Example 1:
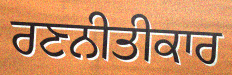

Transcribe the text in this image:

ਰਣਨੀਤੀਕਾਰ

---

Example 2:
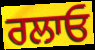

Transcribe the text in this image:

ਰਲਾਓ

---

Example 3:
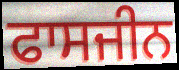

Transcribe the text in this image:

ਫਾਸਜੀਨ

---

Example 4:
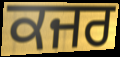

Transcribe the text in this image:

ਕਜਰ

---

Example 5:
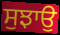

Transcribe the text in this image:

ਸੁਝਾਉ